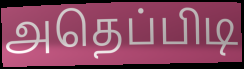
அதெப்பிடி